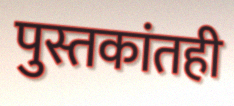
पुस्तकांतही